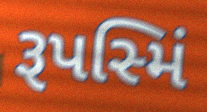
રૂપસ્મિં